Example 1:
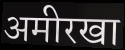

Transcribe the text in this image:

अमीरखा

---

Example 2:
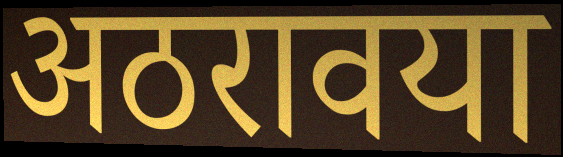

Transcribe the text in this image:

अठरावया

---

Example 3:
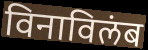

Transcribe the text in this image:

विनाविलंब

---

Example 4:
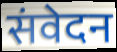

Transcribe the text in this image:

संवेदन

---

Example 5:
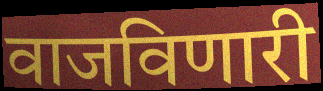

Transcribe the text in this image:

वाजविणारी